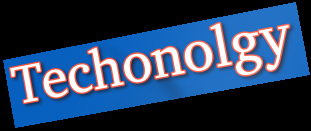
Techonolgy